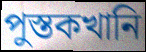
পুস্তকখানি